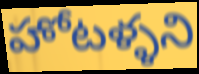
హోటళ్ళని